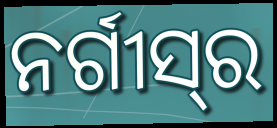
ନର୍ଗୀସ୍‍ର